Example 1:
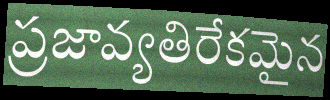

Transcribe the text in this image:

ప్రజావ్యతిరేకమైన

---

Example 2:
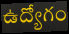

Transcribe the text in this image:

ఉద్యోగం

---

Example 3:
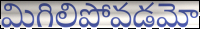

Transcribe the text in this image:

మిగిలిపోవడమో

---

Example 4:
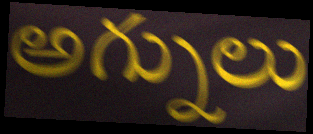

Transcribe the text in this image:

అగ్నులు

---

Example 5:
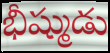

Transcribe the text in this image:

భీష్ముడు